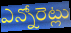
ఎన్నోరెట్లు